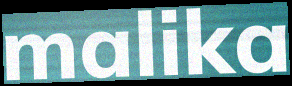
malika